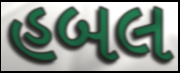
હબલ